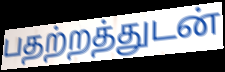
பதற்றத்துடன்